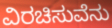
ವಿರಚಿಸುವೆನು